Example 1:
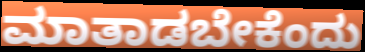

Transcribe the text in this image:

ಮಾತಾಡಬೇಕೆಂದು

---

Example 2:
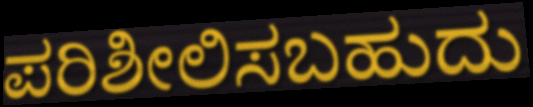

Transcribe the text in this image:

ಪರಿಶೀಲಿಸಬಹುದು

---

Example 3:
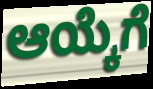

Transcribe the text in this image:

ಆಯ್ಕೆಗೆ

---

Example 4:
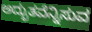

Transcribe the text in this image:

ಅದ್ಭುತವೆನ್ನಿಸುವ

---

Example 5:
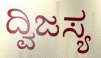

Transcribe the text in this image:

ದ್ವಿಜಸ್ಯ